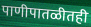
पाणीपातळीतही